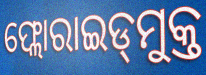
ଫ୍ଲୋରାଇଡ୍‌ମୁକ୍ତ